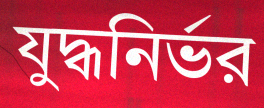
যুদ্ধনির্ভর